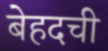
बेहदची